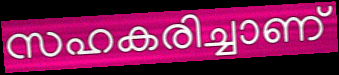
സഹകരിച്ചാണ്